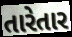
તારેતાર